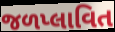
જળપ્લાવિત